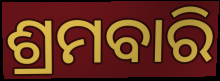
ଶ୍ରମବାରି